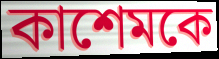
কাশেমকে